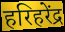
हरिहरेंद्र